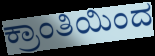
ಕ್ರಾಂತಿಯಿಂದ